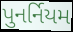
પુનર્નિયમ